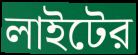
লাইটের